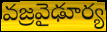
వజ్రవైఢూర్య